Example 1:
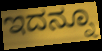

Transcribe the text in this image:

ಇದನ್ನೂ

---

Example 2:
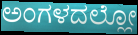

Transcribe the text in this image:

ಅಂಗಳದಲ್ಲೋ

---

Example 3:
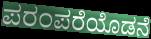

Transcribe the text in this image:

ಪರಂಪರೆಯೊಡನೆ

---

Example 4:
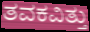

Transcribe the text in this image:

ತವಕವಿತ್ತು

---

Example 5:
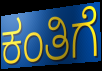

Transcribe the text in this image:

ಕಂತಿಗೆ